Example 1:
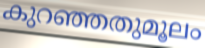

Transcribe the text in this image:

കുറഞ്ഞതുമൂലം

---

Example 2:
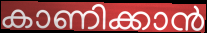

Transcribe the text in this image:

കാണിക്കാൻ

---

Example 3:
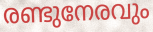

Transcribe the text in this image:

രണ്ടുനേരവും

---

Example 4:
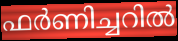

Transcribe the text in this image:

ഫർണിച്ചറിൽ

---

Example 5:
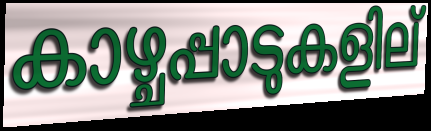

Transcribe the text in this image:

കാഴ്ചപ്പാടുകളില്